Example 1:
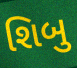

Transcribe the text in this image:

શિબુ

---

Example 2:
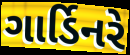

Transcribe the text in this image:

ગાર્ડિનરે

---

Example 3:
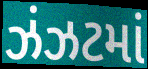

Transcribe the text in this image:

ઝંઝટમાં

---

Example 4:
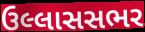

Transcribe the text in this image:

ઉલ્લાસસભર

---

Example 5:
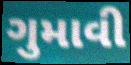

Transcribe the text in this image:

ગુમાવી